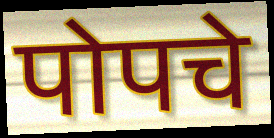
पोपचे